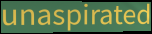
unaspirated